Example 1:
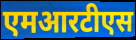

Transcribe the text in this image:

एमआरटीएस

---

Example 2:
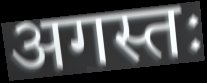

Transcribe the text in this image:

अगस्तः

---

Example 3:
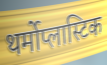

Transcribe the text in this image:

थर्मोप्लास्टिक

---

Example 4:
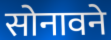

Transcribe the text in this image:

सोनावने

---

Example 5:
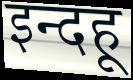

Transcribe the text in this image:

इन्दहू